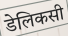
डेलिकसी